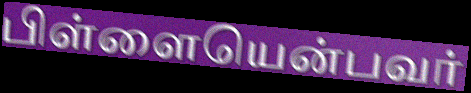
பிள்ளையென்பவர்